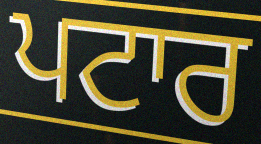
ਪਟਾਰ